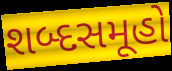
શબ્દસમૂહો